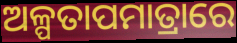
ଅଳ୍ପତାପମାତ୍ରାରେ